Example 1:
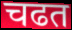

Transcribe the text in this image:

चढत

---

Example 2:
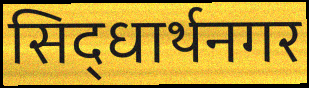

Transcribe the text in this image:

सिद्धार्थनगर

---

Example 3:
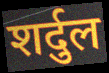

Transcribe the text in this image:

शर्दुल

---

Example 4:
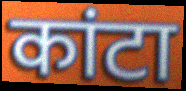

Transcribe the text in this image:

कांटा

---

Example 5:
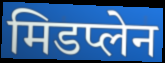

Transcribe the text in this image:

मिडप्लेन